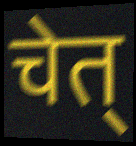
चेत्